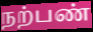
நற்பண்